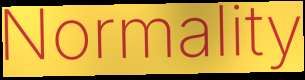
Normality